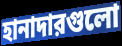
হানাদারগুলো